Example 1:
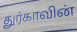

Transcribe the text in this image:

துர்காவின்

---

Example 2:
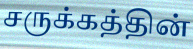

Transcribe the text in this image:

சருக்கத்தின்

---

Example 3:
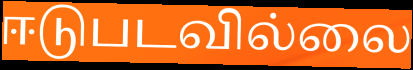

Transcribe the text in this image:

ஈடுபடவில்லை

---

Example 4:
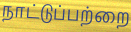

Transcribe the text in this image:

நாட்டுப்பற்றை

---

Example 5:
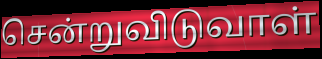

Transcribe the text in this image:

சென்றுவிடுவாள்